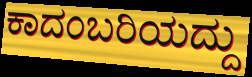
ಕಾದಂಬರಿಯದ್ದು